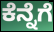
ಕೆನ್ನೆಗೆ